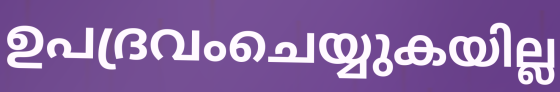
ഉപദ്രവംചെയ്യുകയില്ല